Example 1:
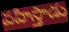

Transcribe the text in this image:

వహిస్తాడు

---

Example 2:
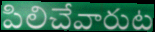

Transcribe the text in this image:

పిలిచేవారుట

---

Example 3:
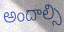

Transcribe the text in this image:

అందాల్సి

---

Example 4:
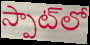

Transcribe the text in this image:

స్పాట్‌లో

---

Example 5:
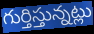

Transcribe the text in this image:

గుర్తిస్తున్నట్లు